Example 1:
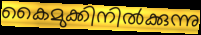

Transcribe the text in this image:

കൈമുക്കിനിൽക്കുന്നു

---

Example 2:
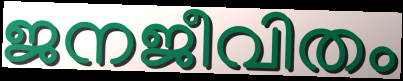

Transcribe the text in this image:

ജനജീവിതം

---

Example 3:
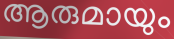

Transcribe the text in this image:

ആരുമായും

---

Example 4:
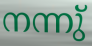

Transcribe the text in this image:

നന്നു്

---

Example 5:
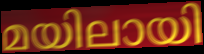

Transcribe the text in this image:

മയിലായി